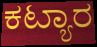
ಕಟ್ಯಾರ